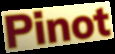
Pinot